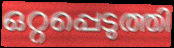
ഒറ്റപ്പെടുത്തി